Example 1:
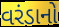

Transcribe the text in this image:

વરંડાનો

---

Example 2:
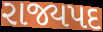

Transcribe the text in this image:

રાજ્યપદ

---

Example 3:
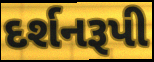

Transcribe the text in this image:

દર્શનરૂપી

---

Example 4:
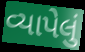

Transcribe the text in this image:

વ્યાપેલું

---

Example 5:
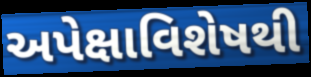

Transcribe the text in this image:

અપેક્ષાવિશેષથી